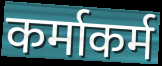
कर्माकर्म